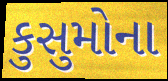
કુસુમોના